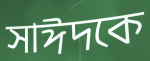
সাঈদকে